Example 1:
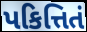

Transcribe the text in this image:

પકિત્તિતં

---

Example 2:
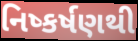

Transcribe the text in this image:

નિષ્કર્ષણથી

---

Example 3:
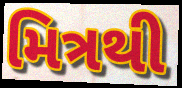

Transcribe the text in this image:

મિત્રથી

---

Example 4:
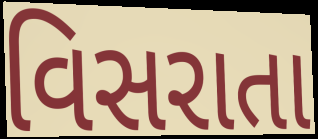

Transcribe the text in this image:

વિસરાતા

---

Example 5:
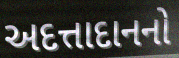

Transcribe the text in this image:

અદત્તાદાનનો